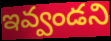
ఇవ్వండని